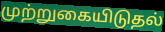
முற்றுகையிடுதல்